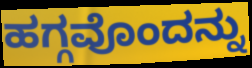
ಹಗ್ಗವೊಂದನ್ನು